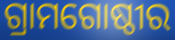
ଗ୍ରାମଗୋଷ୍ଠୀର